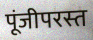
पूंजीपरस्त